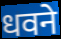
धवने